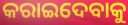
କରାଇଦେବାକୁ